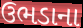
ઉભડાના